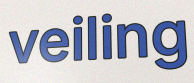
veiling